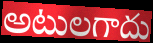
అటులగాదు